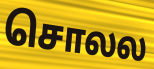
சொலல